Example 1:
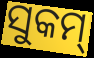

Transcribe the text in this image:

ସୁକମ୍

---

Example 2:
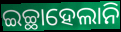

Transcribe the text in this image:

ଇଚ୍ଛାହେଲାନି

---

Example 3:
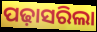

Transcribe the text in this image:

ପଢ଼ାସରିଲା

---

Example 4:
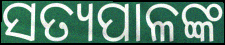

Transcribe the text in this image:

ସତ୍ୟପାଳଙ୍କ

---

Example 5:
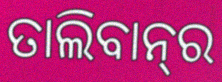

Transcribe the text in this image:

ତାଲିବାନ୍‌ର